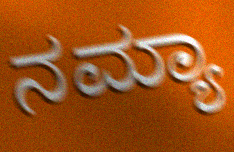
ನಮ್ಯಾ